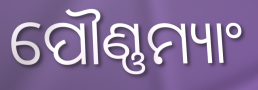
ପୌଣ୍ଣମ୍ୟାଂ